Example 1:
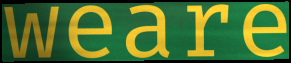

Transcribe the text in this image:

weare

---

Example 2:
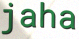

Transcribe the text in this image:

jaha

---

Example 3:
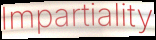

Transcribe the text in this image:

Impartiality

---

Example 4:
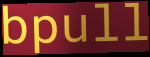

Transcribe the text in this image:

bpull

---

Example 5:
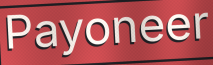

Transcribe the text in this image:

Payoneer